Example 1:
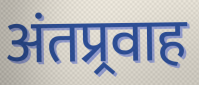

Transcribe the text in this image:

अंतप्र्रवाह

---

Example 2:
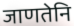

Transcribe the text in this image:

जाणतेनि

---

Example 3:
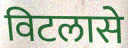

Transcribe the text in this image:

विटलासे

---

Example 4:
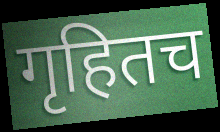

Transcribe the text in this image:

गृहितच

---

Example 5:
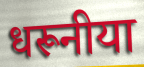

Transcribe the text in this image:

धरूनीया